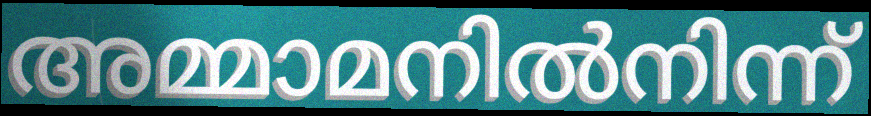
അമ്മാമനിൽനിന്ന്